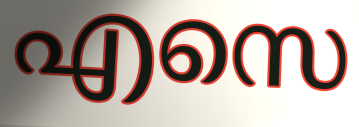
എസെ